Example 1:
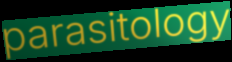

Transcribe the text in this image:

parasitology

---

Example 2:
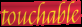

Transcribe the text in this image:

touchable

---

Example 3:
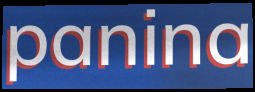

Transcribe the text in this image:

panina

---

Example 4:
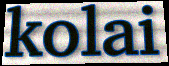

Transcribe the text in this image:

kolai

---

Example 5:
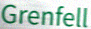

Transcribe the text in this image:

Grenfell